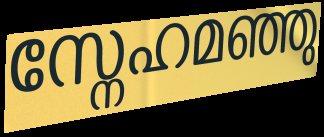
സ്നേഹമഞ്ഞു